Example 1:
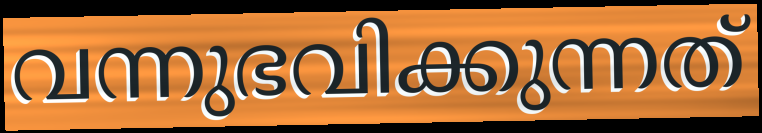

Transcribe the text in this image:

വന്നുഭവിക്കുന്നത്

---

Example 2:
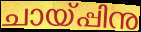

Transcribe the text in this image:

ചായ്പ്പിനു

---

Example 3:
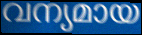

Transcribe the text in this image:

വന്യമായ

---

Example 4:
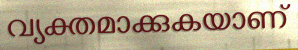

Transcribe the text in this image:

വ്യക്തമാക്കുകയാണ്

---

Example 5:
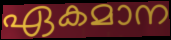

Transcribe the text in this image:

ഏകമാന